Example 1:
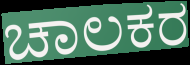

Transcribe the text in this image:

ಚಾಲಕರ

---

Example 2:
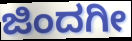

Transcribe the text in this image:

ಜಿಂದಗೀ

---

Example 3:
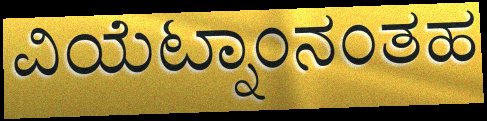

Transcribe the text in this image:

ವಿಯೆಟ್ನಾಂನಂತಹ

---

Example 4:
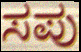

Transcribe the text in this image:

ಸಪು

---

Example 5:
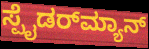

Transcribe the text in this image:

ಸ್ಪೈಡರ್‌ಮ್ಯಾನ್